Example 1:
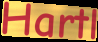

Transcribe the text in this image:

Hartl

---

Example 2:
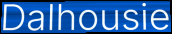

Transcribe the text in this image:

Dalhousie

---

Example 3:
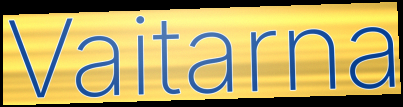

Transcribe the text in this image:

Vaitarna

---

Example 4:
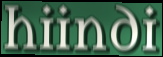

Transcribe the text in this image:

hiindi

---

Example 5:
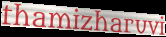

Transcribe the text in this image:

thamizharuvi